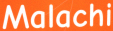
Malachi